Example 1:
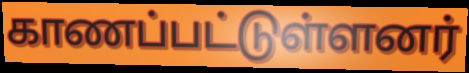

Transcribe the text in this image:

காணப்பட்டுள்ளனர்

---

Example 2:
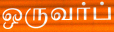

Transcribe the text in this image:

ஒருவர்ப்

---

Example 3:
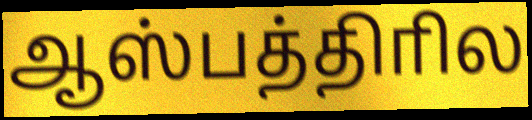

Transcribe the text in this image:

ஆஸ்பத்திரில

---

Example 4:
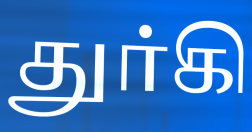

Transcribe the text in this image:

துர்கி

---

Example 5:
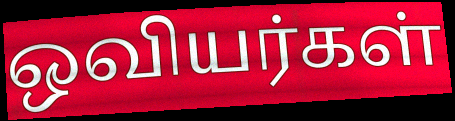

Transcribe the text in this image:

ஒவியர்கள்